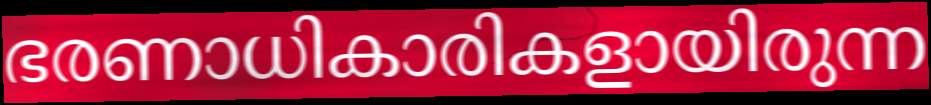
ഭരണാധികാരികളായിരുന്ന